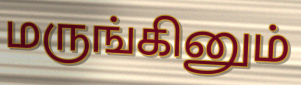
மருங்கினும்